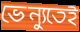
ভেন্যুতেই